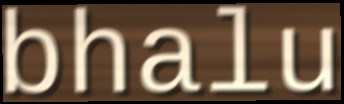
bhalu